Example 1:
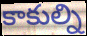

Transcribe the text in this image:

కాకుల్ని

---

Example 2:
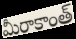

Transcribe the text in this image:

మీరాకాంత్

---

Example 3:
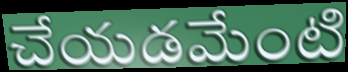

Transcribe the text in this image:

చేయడమేంటి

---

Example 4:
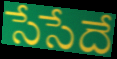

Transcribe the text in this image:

సేసేదే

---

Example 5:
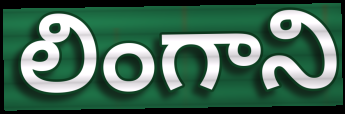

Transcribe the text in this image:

లింగాని